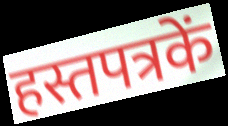
हस्तपत्रकें